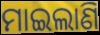
ମାଇଲାଣି